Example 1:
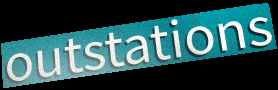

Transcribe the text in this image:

outstations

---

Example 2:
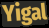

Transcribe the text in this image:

Yigal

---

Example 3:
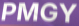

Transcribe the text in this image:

PMGY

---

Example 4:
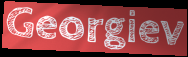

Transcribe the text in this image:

Georgiev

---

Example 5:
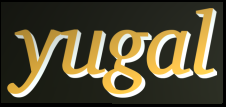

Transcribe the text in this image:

yugal